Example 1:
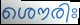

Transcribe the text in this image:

ശൌരിഃ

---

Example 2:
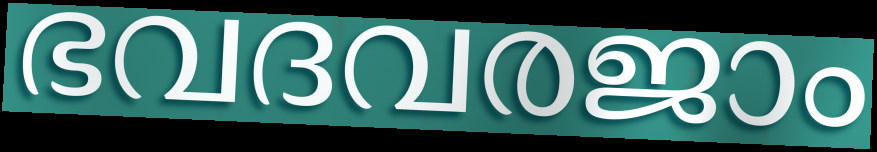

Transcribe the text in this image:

ഭവദവരജാം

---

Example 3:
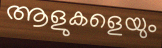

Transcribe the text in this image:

ആളുകളെയും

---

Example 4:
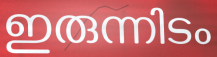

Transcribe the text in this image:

ഇരുന്നിടം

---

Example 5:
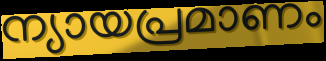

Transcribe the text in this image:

ന്യായപ്രമാണം